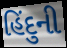
હિંદુની